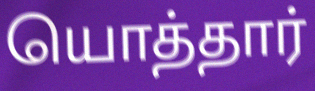
யொத்தார்